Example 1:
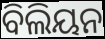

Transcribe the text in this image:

ବିଲିୟନ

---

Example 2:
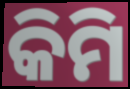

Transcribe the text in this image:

କିମି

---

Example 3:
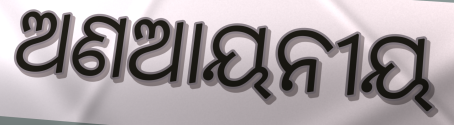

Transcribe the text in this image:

ଅଣଆୟନୀୟ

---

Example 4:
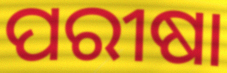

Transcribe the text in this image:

ପରୀଷା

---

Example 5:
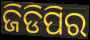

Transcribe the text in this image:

ଜିଡିପିର